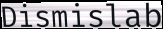
Dismislab